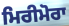
ਮਿਰੀਮੋਰਾ